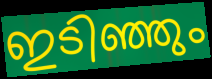
ഇടിഞ്ഞും